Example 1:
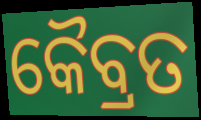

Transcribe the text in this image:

କୈବ୍ରତ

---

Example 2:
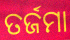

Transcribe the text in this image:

ତର୍ଜମା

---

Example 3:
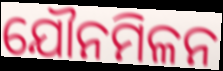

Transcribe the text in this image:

ଯୌନମିଳନ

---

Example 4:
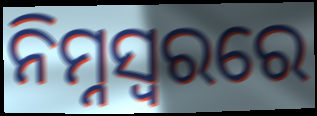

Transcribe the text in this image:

ନିମ୍ନସ୍ଵରରେ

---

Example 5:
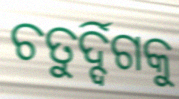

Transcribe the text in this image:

ଚତୁର୍ଦ୍ଦିଗକୁ